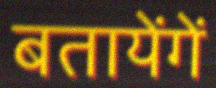
बतायेंगें